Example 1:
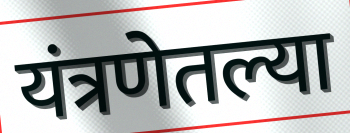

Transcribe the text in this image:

यंत्रणेतल्या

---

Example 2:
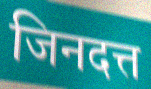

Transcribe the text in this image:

जिनदत्त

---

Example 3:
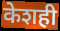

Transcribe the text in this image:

केशही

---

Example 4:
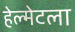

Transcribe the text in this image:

हेल्मेटला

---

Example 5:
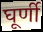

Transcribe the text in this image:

घूर्णी